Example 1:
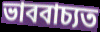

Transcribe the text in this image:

ভাববাচ্যত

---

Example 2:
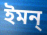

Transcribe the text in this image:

ইমন্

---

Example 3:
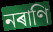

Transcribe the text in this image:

নৰাণি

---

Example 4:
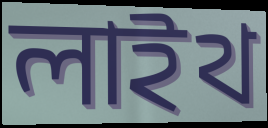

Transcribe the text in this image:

লাইথ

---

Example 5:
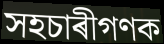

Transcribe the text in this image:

সহচাৰীগণক